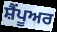
ਸ਼ੈਂਪੂਅਰ